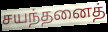
சயந்தனைத்